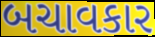
બચાવકાર